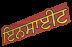
ਇਨਸਾਈਟ